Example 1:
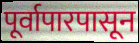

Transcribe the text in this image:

पूर्वापारपासून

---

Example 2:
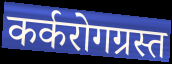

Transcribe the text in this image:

कर्करोगग्रस्त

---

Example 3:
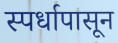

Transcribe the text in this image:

स्पर्धापासून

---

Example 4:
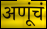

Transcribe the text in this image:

अणूंचं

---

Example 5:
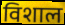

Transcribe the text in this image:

विशाल